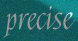
precise